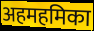
अहमहमिका